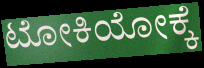
ಟೋಕಿಯೋಕ್ಕೆ